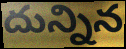
దున్నిన